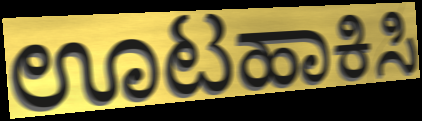
ಊಟಹಾಕಿಸಿ